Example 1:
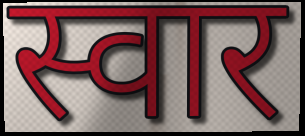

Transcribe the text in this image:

स्वार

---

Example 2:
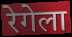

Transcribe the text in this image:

रेगेला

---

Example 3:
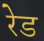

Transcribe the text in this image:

रेड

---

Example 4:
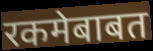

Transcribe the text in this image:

रकमेबाबत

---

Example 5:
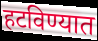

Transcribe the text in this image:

हटविण्यात